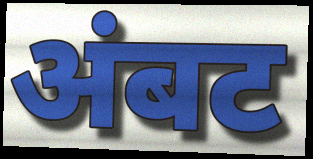
अंबट